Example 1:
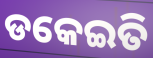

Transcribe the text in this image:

ଡକେଇତି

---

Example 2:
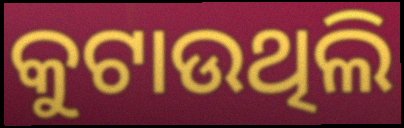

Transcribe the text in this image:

କୁଟାଉଥିଲି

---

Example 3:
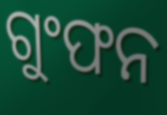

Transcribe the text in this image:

ଗୁଂଫନ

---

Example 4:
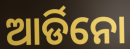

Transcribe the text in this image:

ଆର୍ଡିନୋ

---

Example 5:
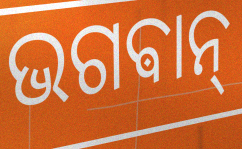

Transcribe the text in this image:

ଭଗଵାନ୍